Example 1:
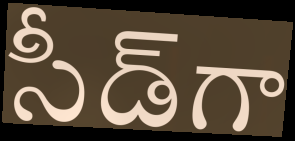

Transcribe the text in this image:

సీడ్‌గా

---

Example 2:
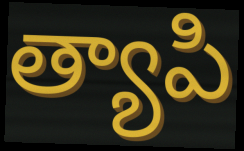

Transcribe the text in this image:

త్యాపి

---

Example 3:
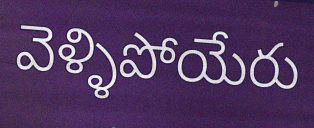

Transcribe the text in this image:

వెళ్ళిపోయేరు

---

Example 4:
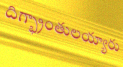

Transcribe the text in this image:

దిగ్భ్రాంతులయ్యారు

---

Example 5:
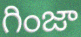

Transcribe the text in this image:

గింజా